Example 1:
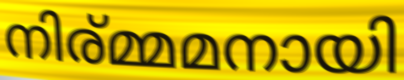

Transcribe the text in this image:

നിര്മ്മമനായി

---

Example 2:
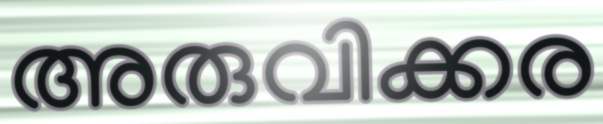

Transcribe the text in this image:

അരുവിക്കര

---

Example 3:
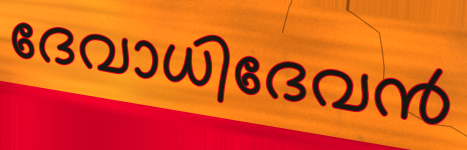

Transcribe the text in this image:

ദേവാധിദേവൻ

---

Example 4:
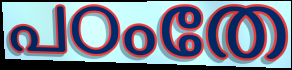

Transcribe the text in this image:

പഠംതേ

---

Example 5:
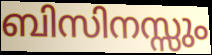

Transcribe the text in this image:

ബിസിനസ്സും